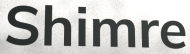
Shimre